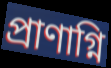
প্রাণাগ্নি